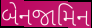
બેનજામિન